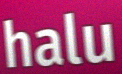
halu